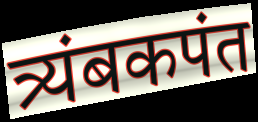
त्र्यंबकपंत